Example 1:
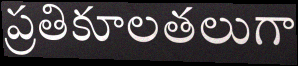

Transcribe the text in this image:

ప్రతికూలతలుగా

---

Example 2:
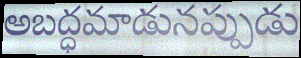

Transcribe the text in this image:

అబద్ధమాడునప్పుడు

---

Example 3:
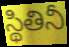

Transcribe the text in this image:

స్థితినీ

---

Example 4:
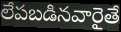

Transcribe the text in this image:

లేపబడినవారైతే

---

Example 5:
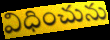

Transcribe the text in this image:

విధించును